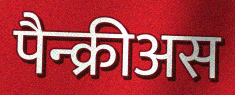
पैन्क्रीअस